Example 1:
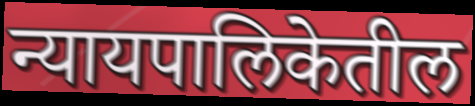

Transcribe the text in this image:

न्यायपालिकेतील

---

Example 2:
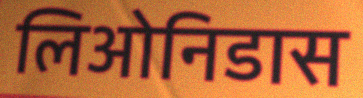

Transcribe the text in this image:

लिओनिडास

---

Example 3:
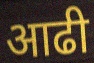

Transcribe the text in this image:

आढी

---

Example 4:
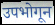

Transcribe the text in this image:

उपभोगून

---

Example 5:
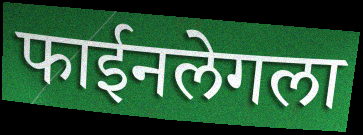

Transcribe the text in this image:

फाईनलेगला